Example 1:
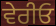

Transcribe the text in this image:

ਵੇਰੀਓ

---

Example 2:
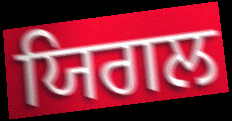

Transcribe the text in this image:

ਯਿਗਲ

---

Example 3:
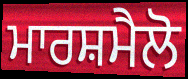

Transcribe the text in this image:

ਮਾਰਸ਼ਮੈਲੋ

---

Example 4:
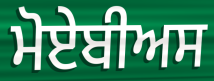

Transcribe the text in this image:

ਮੋਏਬੀਅਸ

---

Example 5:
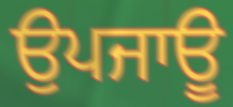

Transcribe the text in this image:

ਉਪਜਾਊ